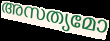
അസത്യമോ